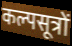
कल्पसूत्रों